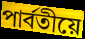
পাৰ্বতীয়ে